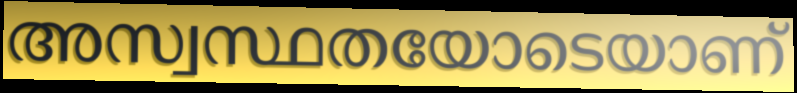
അസ്വസ്ഥതയോടെയാണ്